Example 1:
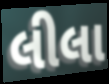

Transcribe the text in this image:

લીલા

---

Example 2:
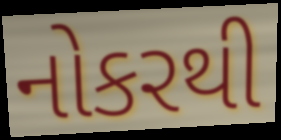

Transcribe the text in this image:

નોકરથી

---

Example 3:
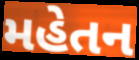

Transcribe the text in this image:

મહેતન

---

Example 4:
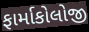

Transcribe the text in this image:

ફાર્માકોલોજી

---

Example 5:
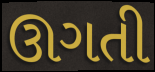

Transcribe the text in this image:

ઊગતી